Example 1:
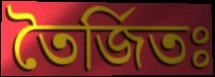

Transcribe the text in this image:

তৈর্জিতঃ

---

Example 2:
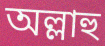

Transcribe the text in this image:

অল্লাহু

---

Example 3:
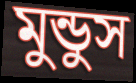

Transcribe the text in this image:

মুন্ডুস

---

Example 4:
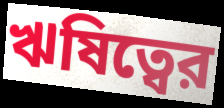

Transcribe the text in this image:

ঋষিত্বের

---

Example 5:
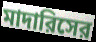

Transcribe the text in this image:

মাদারিসের